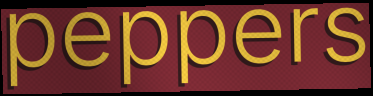
peppers